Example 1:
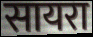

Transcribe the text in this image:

सायरा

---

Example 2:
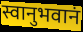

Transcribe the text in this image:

स्वानुभवानं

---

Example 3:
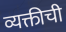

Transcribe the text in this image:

व्यक्तीची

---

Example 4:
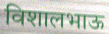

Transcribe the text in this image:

विशालभाऊ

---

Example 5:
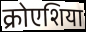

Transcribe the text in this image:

क्रोएशिया